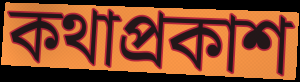
কথাপ্রকাশ